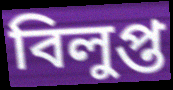
বিলুপ্ত